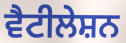
ਵੈਟੀਲੇਸ਼ਨ